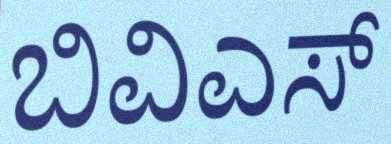
ಬಿವಿಎಸ್